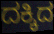
ದಕ್ಕಿದ